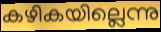
കഴികയില്ലെന്നു